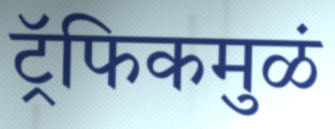
ट्रॅफिकमुळं